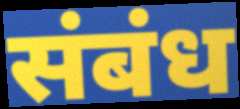
संबंध